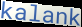
kalank